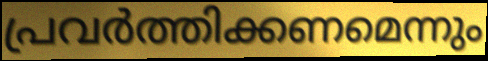
പ്രവർത്തിക്കണമെന്നും